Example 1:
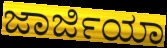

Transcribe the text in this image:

ಜಾರ್ಜಿಯಾ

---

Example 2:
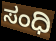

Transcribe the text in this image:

ಸಂಧಿ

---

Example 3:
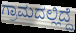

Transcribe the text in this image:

ಗ್ರಾಮದಲ್ಲಿದ್ದೆ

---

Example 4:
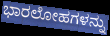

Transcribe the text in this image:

ಭಾರಲೋಹಗಳನ್ನು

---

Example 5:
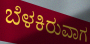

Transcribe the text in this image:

ಬೆಳಕಿರುವಾಗ